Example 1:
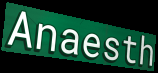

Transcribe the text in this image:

Anaesth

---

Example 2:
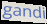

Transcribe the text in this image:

gandi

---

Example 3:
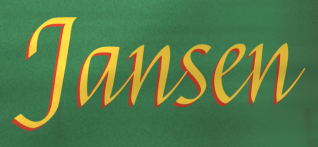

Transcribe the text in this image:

Jansen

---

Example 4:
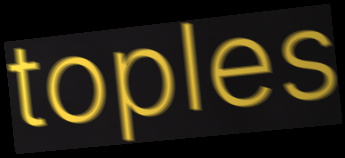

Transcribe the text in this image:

toples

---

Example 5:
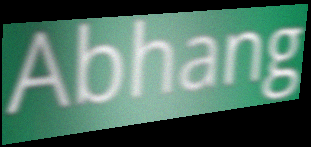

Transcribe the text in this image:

Abhang